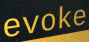
evoke